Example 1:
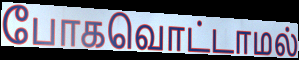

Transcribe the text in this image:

போகவொட்டாமல்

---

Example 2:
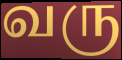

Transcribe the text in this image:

வரு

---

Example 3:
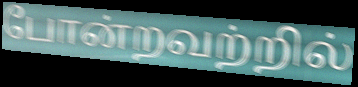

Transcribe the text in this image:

போன்றவற்றில்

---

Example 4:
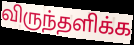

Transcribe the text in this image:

விருந்தளிக்க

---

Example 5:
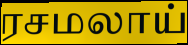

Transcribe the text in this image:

ரசமலாய்